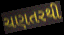
ચણતરથી